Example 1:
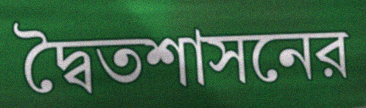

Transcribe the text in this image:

দ্বৈতশাসনের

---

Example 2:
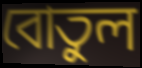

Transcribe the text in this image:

বোতুল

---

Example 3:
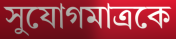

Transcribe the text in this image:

সুযোগমাত্রকে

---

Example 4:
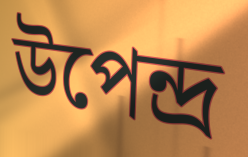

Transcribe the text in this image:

উপেন্দ্র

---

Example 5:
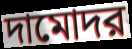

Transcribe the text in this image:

দামোদর